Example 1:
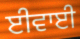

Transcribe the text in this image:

ਈਵਾਈ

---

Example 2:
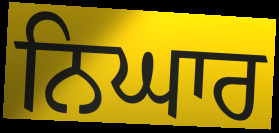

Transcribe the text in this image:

ਨਿਘਾਰ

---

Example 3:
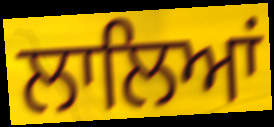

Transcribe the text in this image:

ਲਾਲਿਆਂ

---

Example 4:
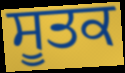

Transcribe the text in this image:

ਸੂਤਕ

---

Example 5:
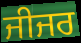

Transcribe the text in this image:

ਜੀਜਰ